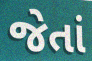
જેતાં